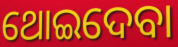
ଥୋଇଦେବା